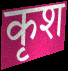
कृश